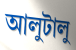
আলুটালু